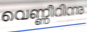
വെണ്ണീറിന്നു